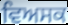
ਵਿਅਸਕ